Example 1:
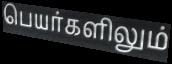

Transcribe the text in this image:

பெயர்களிலும்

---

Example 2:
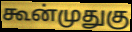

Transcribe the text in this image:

கூன்முதுகு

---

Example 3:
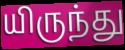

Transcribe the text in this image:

யிருந்து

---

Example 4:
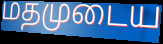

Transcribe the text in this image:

மதமுடைய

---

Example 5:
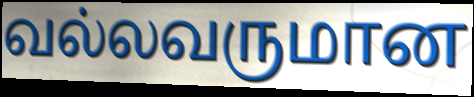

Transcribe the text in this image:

வல்லவருமான